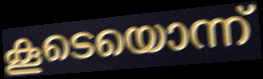
കൂടെയൊന്ന്